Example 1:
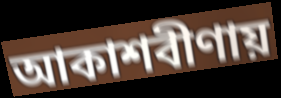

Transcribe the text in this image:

আকাশবীণায়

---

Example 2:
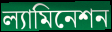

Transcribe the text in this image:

ল্যামিনেশন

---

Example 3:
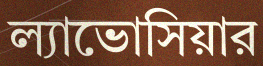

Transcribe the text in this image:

ল্যাভোসিয়ার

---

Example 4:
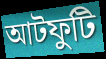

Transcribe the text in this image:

আটফুটি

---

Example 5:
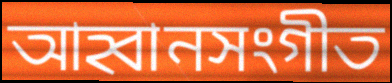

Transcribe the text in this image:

আহ্বানসংগীত